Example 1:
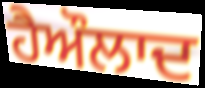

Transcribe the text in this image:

ਹੈਔਲਾਦ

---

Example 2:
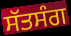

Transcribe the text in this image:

ਸੱਤਸੰਗ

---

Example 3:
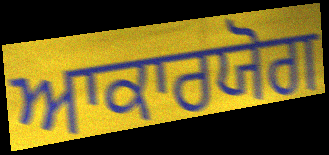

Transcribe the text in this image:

ਆਕਾਰਯੋਗ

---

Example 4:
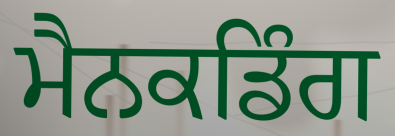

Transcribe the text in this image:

ਮੈਨਕਡਿੰਗ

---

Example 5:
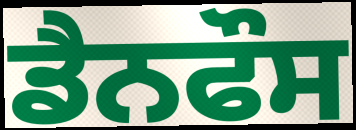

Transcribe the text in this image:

ਡੈਨਫੌਸ